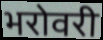
भरोवरी